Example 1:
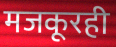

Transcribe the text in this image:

मजकूरही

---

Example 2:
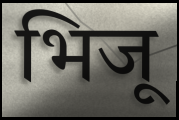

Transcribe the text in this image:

भिजू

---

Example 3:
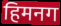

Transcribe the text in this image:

हिमनग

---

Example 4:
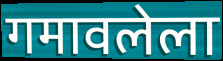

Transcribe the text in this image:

गमावलेला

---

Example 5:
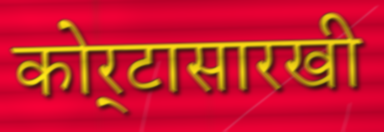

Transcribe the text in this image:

कोर्टासारखी